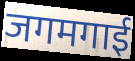
जगमगाई